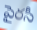
పైరసీ